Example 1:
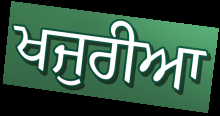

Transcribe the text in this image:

ਖਜੁਰੀਆ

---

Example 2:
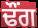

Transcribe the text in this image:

ਢੌਂਗ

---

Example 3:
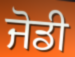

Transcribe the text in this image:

ਜੋਡੀ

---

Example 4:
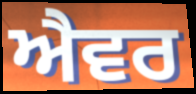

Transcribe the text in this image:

ਐਵਰ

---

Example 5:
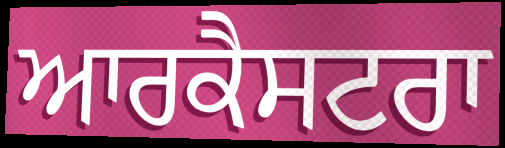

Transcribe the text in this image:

ਆਰਕੈਸਟਰਾ